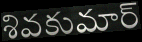
శివకుమార్